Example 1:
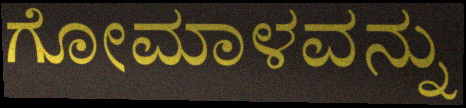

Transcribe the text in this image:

ಗೋಮಾಳವನ್ನು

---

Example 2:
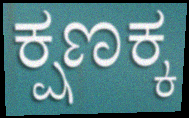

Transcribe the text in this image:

ಕ್ಷಣಕ್ಕ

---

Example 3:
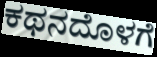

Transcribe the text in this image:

ಕಥನದೊಳಗೆ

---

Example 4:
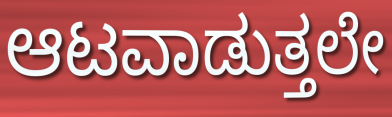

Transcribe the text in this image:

ಆಟವಾಡುತ್ತಲೇ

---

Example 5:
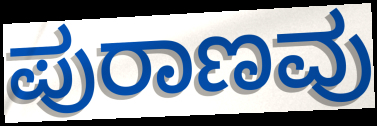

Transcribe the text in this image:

ಪುರಾಣವು